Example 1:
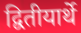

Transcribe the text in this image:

द्वितीयार्थे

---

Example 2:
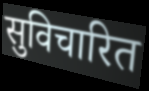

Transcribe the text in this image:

सुविचारित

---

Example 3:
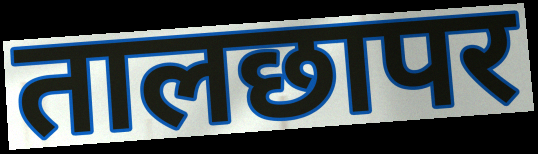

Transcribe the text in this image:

तालछापर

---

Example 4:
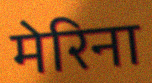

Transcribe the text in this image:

मेरिना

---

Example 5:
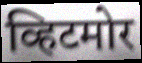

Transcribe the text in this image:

व्हिटमोर